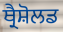
ਥ੍ਰੈਸ਼ੋਲਡ